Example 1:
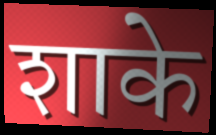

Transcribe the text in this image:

शाके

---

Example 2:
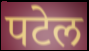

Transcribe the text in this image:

पटेल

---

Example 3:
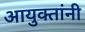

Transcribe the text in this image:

आयुक्तांनी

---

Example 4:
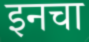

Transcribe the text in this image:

इनचा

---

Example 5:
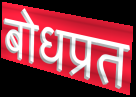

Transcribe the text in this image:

बोधप्रत